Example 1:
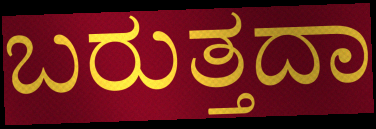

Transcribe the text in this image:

ಬರುತ್ತದಾ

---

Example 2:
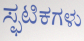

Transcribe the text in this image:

ಸ್ಫಟಿಕಗಳು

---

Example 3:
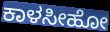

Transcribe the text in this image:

ಕಾಳಸೀಹೋ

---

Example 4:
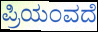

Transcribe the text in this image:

ಪ್ರಿಯಂವದೆ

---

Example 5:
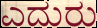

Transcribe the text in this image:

ಎದುರು